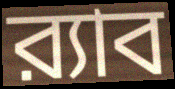
র‍্যাব